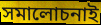
সমালোচনাই